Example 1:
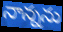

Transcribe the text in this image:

నాన్నను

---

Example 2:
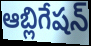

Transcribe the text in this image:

ఆబ్లిగేషన్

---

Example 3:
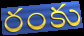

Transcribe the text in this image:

రంకు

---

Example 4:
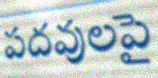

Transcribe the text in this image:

పదవులపై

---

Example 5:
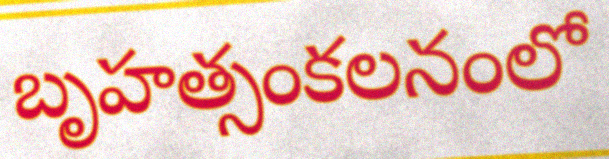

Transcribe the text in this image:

బృహత్సంకలనంలో